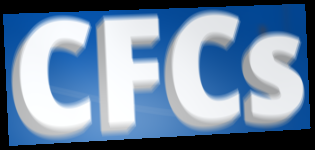
CFCs